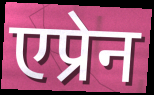
एप्रेन